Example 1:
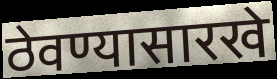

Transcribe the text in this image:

ठेवण्यासारखे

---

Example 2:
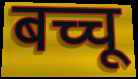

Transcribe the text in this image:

बच्चू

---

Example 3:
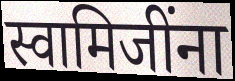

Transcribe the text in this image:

स्वामिजींना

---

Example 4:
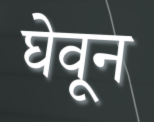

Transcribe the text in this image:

घेवून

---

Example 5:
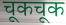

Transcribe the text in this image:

चूकचूक